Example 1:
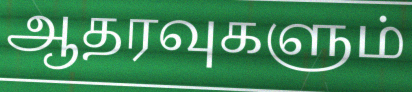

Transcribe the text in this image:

ஆதரவுகளும்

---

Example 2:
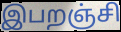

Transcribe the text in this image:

இபறஞ்சி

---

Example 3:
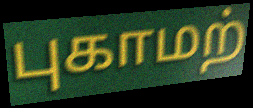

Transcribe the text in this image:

புகாமற்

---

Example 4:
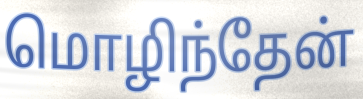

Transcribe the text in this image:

மொழிந்தேன்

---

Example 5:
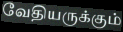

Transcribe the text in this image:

வேதியருக்கும்